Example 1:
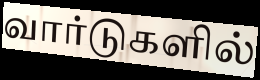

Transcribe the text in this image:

வார்டுகளில்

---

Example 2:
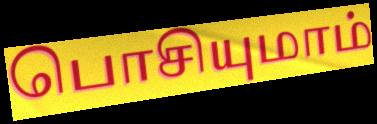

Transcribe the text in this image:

பொசியுமாம்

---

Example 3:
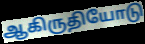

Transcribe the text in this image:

ஆகிருதியோடு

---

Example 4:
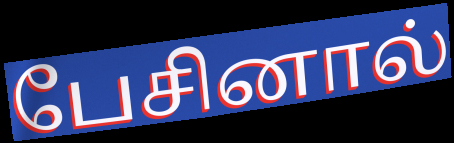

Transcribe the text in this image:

பேசினால்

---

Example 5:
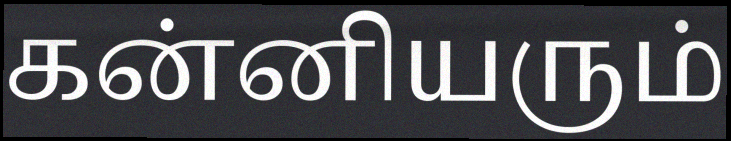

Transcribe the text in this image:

கன்னியரும்